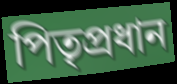
পিতৃপ্রধান